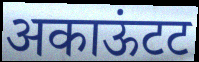
अकाऊंटट